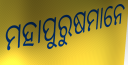
ମହାପୁରୁଷମାନେ